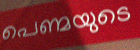
പെണ്മയുടെ